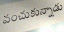
వంచుకున్నాడు